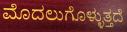
ಮೊದಲುಗೊಳ್ಳುತ್ತದೆ